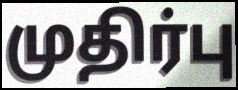
முதிர்பு